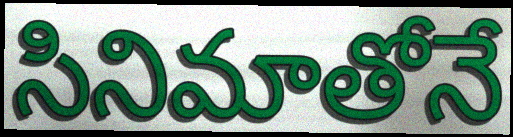
సినిమాతోనే